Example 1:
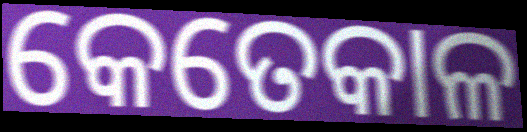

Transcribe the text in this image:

କେତେକାଳ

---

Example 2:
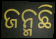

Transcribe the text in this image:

ଜନ୍ମଛି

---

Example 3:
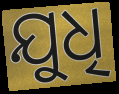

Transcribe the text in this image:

ଯୁଧି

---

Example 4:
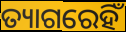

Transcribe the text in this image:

ତ୍ୟାଗରେହିଁ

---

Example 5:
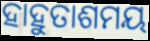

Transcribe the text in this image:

ହାହୁତାଶମୟ